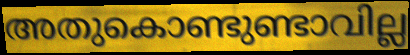
അതുകൊണ്ടുണ്ടാവില്ല